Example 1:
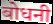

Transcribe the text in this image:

बोधनी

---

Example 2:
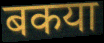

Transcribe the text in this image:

बकया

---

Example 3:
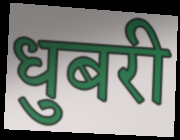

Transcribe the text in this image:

धुबरी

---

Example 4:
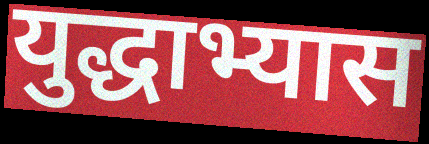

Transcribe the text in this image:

युद्धाभ्यास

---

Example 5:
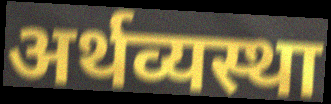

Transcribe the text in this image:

अर्थव्यस्था